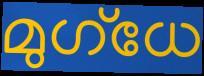
മുഗ്ധേ